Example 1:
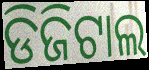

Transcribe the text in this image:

ଡିଜିଟାଲ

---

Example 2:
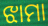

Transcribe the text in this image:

ଝାମା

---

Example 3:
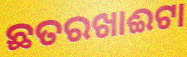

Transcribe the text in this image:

ଛତରଖାଈଟା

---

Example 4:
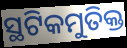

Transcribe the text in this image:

ସ୍ଥଟିକମୁତିକ୍ତ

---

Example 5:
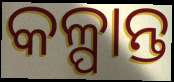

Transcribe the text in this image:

କଳ୍ପାନ୍ତ